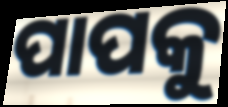
ପାପକୁ